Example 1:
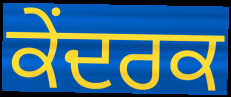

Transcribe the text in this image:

ਕੇਂਦਰਕ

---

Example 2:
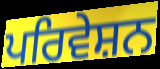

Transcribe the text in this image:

ਪਰਿਵੇਸ਼ਨ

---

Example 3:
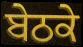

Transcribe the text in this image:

ਬੇਠਕੇ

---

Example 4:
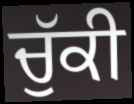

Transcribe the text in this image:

ਚੁੱਕੀ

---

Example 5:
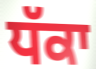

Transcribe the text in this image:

ਧੱਕਾ